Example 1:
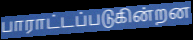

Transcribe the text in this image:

பாராட்டப்படுகின்றன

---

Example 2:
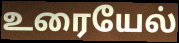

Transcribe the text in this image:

உரையேல்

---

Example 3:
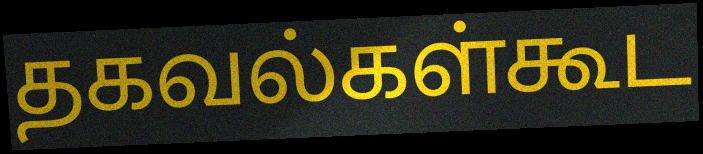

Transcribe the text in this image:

தகவல்கள்கூட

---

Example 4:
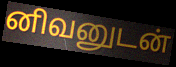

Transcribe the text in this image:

னிவனுடன்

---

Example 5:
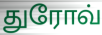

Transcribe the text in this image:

துரோவ்